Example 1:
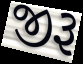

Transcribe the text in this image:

જીરૂ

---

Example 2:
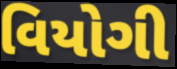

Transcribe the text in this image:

વિયોગી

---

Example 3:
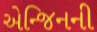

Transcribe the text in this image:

એન્જિનની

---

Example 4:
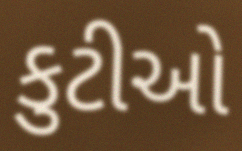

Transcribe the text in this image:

કુટીઓ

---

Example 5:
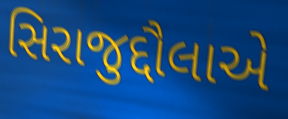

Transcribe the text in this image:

સિરાજુદ્દૌલાએ